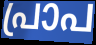
പ്രാപ